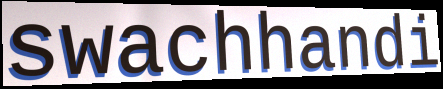
swachhandi